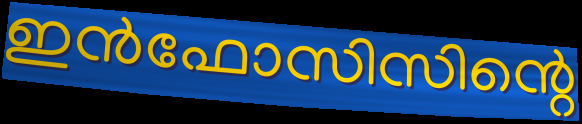
ഇൻഫോസിസിന്റെ